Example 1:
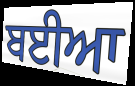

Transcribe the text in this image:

ਬਈਆ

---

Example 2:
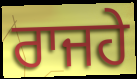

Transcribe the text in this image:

ਰਾਜਹੇ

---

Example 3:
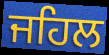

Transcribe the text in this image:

ਜਹਿਲ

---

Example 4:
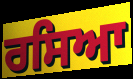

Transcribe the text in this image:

ਰਸਿਆ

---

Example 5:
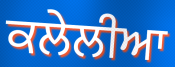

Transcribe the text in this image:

ਕਲੇਲੀਆ